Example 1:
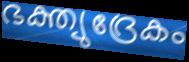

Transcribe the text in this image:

ഭക്ത്യുദ്രേകം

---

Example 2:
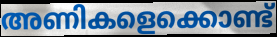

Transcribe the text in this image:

അണികളെക്കൊണ്ട്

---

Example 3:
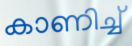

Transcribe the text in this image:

കാണിച്ച്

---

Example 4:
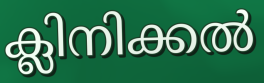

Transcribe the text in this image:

ക്ലിനിക്കൽ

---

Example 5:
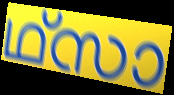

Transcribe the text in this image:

ഥ്സാ